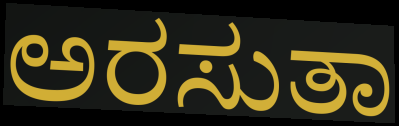
ಅರಸುತಾ